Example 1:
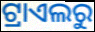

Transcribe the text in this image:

ଟ୍ରାଏଲରୁ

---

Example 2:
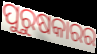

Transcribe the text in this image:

ପୁରୁଷକାରର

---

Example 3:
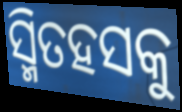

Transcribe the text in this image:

ସ୍ମିତହସକୁ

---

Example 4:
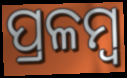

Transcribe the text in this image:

ପ୍ରଳମ୍ବ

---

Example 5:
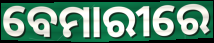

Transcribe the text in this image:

ବେମାରୀରେ